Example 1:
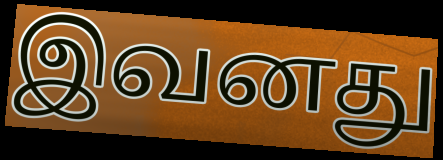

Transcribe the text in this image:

இவனது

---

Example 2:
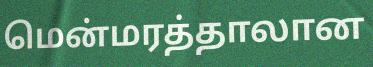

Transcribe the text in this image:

மென்மரத்தாலான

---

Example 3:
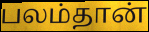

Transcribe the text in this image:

பலம்தான்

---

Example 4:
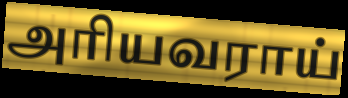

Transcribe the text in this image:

அரியவராய்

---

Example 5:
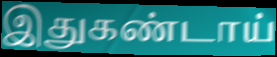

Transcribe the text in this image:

இதுகண்டாய்